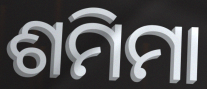
ଶମିମା